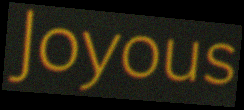
Joyous